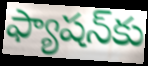
ఫ్యాషన్‌కు